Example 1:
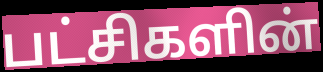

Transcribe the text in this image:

பட்சிகளின்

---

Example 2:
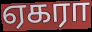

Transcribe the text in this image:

ஏகரா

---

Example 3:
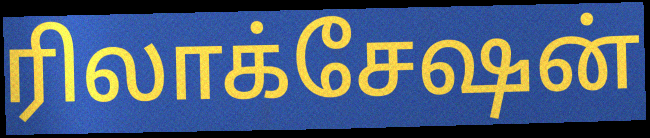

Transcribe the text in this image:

ரிலாக்சேஷன்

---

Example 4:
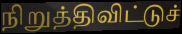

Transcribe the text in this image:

நிறுத்திவிட்டுச்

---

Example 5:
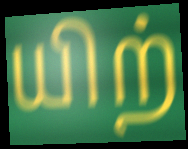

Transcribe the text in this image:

யிற்